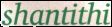
shantithi